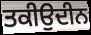
ਤਕੀਉਦੀਨ